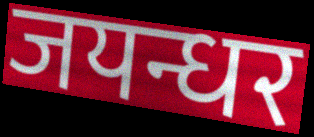
जयन्धर